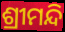
ଶ୍ରୀମନ୍ଦି